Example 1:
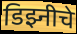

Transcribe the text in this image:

डिझ्नीचे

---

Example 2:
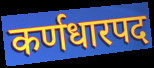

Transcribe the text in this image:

कर्णधारपद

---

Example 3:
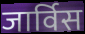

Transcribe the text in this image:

जार्विस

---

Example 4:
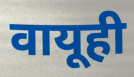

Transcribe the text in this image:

वायूही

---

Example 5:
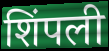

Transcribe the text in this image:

शिंपली